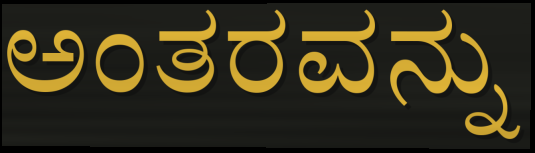
ಅಂತರವನ್ನು